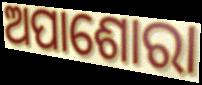
ଅପାଶୋରା